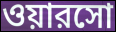
ওয়ারসো